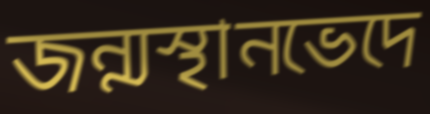
জন্মস্থানভেদে